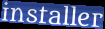
installer